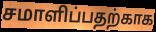
சமாளிப்பதற்காக